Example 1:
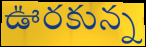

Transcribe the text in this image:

ఊరకున్న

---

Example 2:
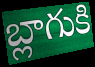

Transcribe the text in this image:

బ్లాగుకి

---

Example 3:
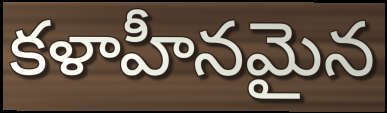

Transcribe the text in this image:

కళాహీనమైన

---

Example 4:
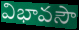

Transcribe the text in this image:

విభావసౌ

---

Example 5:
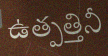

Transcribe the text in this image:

ఉత్పత్తినీ